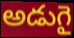
అడుగై